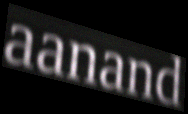
aanand